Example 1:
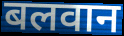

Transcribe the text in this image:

बलवान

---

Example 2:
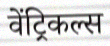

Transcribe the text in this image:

वेंट्रिकल्स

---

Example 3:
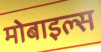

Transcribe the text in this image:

मोबाइल्स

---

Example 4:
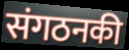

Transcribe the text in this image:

संगठनकी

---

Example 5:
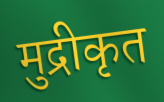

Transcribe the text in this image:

मुद्रीकृत